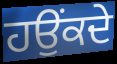
ਹਉਂਕਦੇ